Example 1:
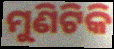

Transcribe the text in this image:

ମୁଣିଟିକି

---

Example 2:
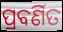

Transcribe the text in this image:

ପ୍ରବର୍ଣିତ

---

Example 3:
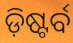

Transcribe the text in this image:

ଡ଼ିଷ୍ଟର୍ବ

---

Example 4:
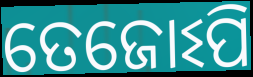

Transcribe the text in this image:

ତେଜୋଽପି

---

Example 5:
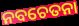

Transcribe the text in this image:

ନବଚେତନା